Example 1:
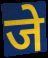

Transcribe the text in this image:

जे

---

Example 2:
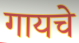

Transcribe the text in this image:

गायचे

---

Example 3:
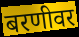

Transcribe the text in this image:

बरणीवर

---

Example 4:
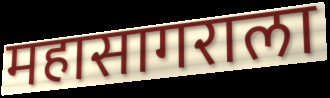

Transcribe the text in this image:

महासागराला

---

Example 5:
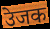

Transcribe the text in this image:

उेजक